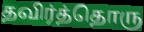
தவிர்த்தொரு